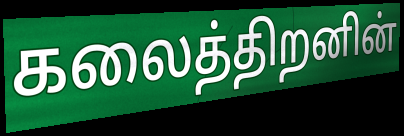
கலைத்திறனின்